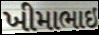
ખીમાભાઇ